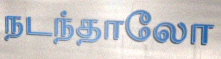
நடந்தாலோ